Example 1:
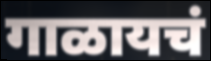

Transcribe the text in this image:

गाळायचं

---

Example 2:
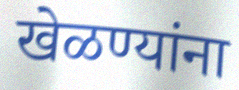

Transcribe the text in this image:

खेळण्यांना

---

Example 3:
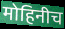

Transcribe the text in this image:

मोहिनीच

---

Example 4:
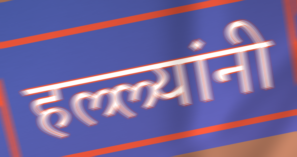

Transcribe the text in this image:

हल्ल्यांनी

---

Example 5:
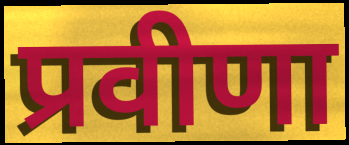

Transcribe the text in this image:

प्रवीणा